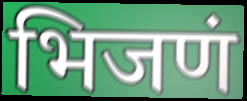
भिजणं